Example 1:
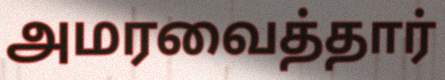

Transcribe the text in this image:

அமரவைத்தார்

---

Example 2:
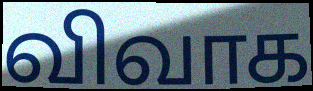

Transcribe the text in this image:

விவாக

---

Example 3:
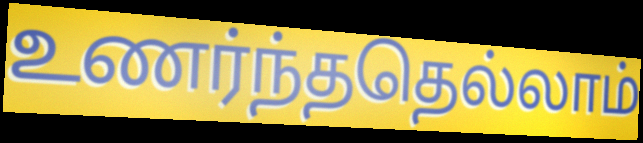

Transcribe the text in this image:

உணர்ந்ததெல்லாம்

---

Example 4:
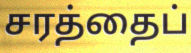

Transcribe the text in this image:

சரத்தைப்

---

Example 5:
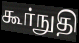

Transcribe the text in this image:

கூர்நுதி